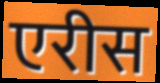
एरीस